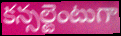
కన్సల్టెంటుగా